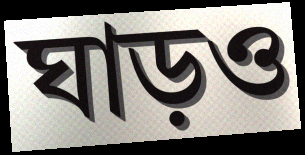
ঘাড়ও